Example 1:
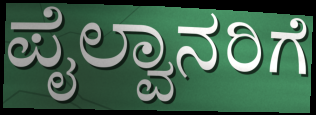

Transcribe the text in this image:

ಪೈಲ್ವಾನರಿಗೆ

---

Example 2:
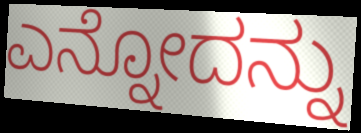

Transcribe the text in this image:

ಎನ್ನೋದನ್ನು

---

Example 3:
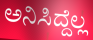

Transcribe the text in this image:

ಅನಿಸಿದ್ದೆಲ್ಲ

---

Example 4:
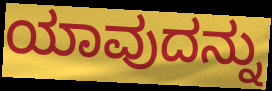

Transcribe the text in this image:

ಯಾವುದನ್ನು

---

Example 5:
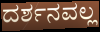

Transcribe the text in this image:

ದರ್ಶನವಲ್ಲ